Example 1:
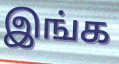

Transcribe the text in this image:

இங்க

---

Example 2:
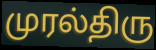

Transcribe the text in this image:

முரல்திரு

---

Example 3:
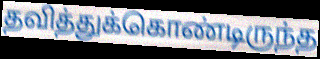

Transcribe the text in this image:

தவித்துக்கொண்டிருந்த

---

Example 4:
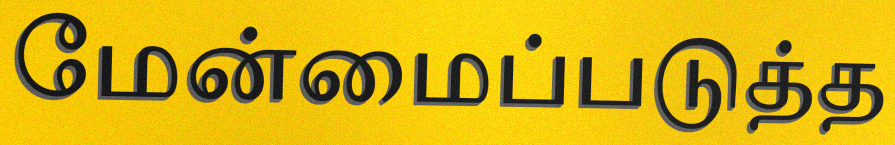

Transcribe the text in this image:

மேன்மைப்படுத்த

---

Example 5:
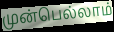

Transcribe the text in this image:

முன்பெல்லாம்